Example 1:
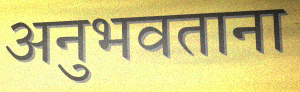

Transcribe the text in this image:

अनुभवताना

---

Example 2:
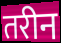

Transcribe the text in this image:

तरीन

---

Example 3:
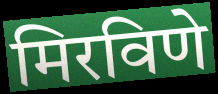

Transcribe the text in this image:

मिरविणे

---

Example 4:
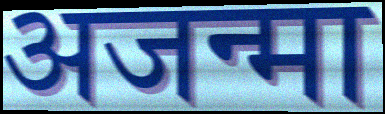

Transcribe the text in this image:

अजन्मा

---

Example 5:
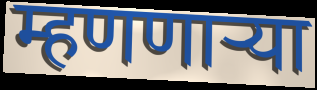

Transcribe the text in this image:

म्हणणाऱ्या